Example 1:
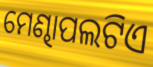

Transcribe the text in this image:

ମେଣ୍ଢାପଲଟିଏ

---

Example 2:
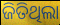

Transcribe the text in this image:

ଜିତିଥିଲା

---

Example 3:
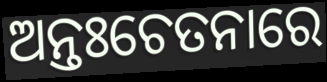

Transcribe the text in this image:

ଅନ୍ତଃଚେତନାରେ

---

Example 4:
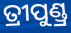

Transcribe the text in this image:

ତ୍ରୀପୁଣ୍ଡ୍ର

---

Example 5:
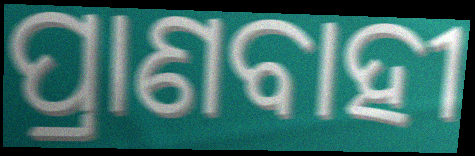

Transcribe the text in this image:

ପ୍ରାଣବାହୀ